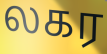
லகர